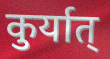
कुर्यात्